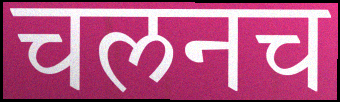
चलनच